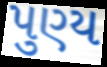
પુણ્ય